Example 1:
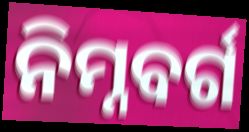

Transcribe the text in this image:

ନିମ୍ନବର୍ଗ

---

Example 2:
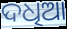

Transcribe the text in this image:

ଦଧିଆ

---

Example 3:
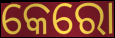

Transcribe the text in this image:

କେରୋ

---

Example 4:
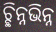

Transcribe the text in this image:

ଚ୍ଛିନ୍ନଭିନ୍ନ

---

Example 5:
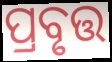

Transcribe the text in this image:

ପ୍ରବୃତ୍ତ